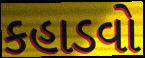
કહાડવો